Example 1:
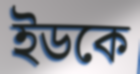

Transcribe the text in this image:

ইডকে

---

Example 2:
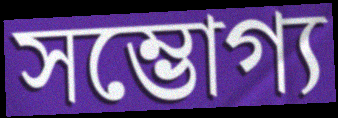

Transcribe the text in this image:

সম্ভোগ্য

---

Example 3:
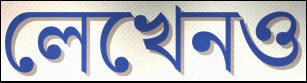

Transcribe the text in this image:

লেখেনও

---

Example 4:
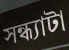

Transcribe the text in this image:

সন্ধ্যাটা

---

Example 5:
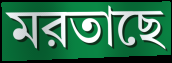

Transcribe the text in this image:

মরতাছে